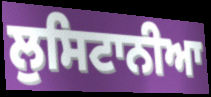
ਲੁਸਿਟਾਨੀਆ